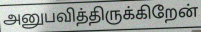
அனுபவித்திருக்கிறேன்